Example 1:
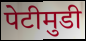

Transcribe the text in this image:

पेटीमुडी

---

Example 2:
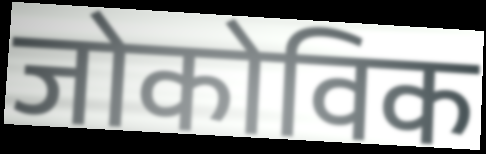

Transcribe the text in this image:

जोकोविक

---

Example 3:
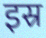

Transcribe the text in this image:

इस्र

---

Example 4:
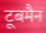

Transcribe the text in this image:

टूबमैन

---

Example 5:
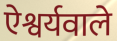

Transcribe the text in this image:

ऐश्वर्यवाले